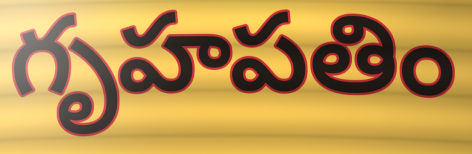
గృహపతిం